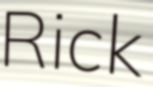
Rick